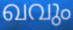
ഖവും